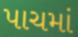
પાચમાં